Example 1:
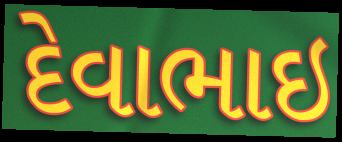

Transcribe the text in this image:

દેવાભાઇ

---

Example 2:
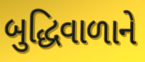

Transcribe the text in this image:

બુદ્ધિવાળાને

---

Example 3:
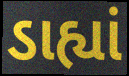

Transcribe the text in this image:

ડાહ્યાં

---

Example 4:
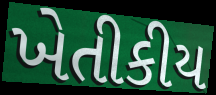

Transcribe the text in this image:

ખેતીકીય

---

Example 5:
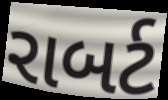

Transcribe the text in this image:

રાબર્ટ